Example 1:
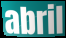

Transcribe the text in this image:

abril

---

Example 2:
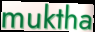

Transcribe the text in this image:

muktha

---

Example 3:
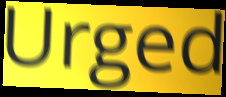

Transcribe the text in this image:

Urged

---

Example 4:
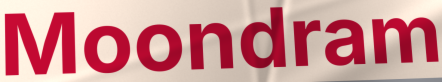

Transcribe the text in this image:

Moondram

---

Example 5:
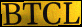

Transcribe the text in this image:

BTCL